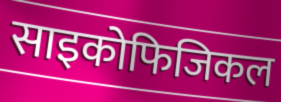
साइकोफिजिकल